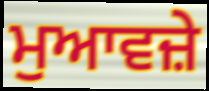
ਮੁਆਵਜ਼ੇ